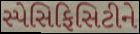
સ્પેસિફિસિટીને